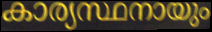
കാര്യസ്ഥനായും